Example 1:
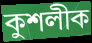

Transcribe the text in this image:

কুশলীক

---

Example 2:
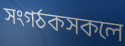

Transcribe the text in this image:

সংগঠকসকলে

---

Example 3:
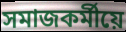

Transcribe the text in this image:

সমাজকৰ্মীয়ে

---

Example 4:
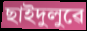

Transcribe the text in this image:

ছাইদুলুৱে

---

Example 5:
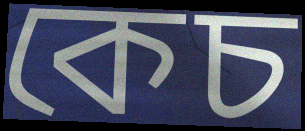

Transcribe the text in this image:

কেচ